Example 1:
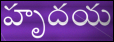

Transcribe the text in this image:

హృదయ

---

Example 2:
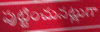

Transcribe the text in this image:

పుట్టించునట్లుగా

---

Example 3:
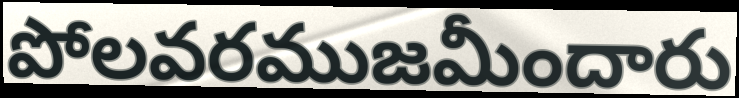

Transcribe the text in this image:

పోలవరముజమీందారు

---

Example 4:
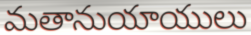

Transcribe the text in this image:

మతానుయాయులు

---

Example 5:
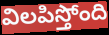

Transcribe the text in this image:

విలపిస్తోంది